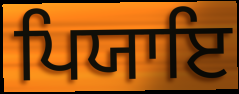
ਪਿਯਾਇ